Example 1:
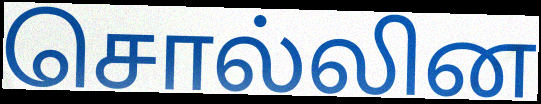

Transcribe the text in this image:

சொல்லின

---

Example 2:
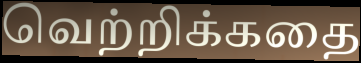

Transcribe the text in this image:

வெற்றிக்கதை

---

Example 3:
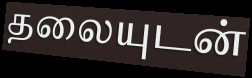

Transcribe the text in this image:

தலையுடன்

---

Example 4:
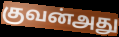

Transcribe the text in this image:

குவன்அது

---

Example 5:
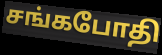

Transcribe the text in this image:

சங்கபோதி